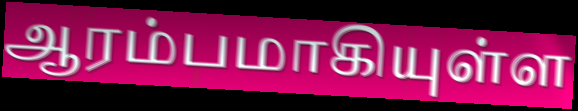
ஆரம்பமாகியுள்ள